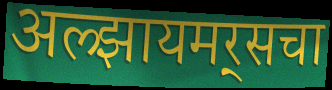
अल्झायमर्सचा